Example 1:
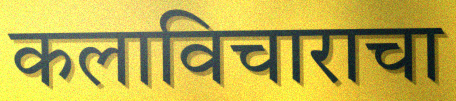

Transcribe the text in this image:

कलाविचाराचा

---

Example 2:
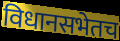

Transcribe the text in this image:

विधानसभेतच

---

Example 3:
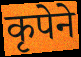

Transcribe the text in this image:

कृपेने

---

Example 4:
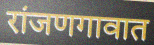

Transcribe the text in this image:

रांजणगावात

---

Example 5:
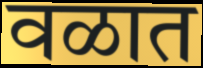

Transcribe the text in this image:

वळात